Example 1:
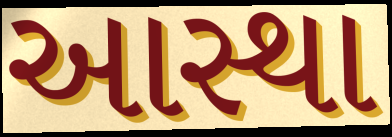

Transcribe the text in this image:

આસ્થા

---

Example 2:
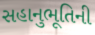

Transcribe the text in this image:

સહાનુભૂતિની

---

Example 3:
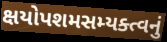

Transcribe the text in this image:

ક્ષયોપશમસમ્યક્ત્વનું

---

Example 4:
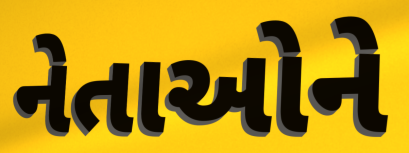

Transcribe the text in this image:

નેતાઓને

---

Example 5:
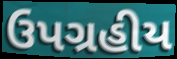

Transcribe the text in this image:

ઉપગ્રહીય